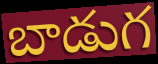
బాడుగ